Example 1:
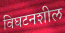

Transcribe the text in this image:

विघटनशील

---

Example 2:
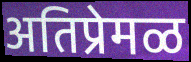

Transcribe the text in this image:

अतिप्रेमळ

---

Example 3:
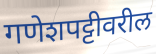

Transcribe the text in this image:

गणेशपट्टीवरील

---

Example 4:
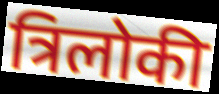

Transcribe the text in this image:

त्रिलोकी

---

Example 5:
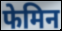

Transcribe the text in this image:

फेमिन